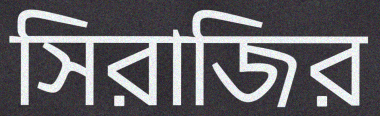
সিরাজির